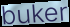
buker